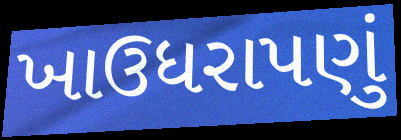
ખાઉધરાપણું